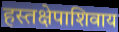
हस्तक्षेपाशिवाय